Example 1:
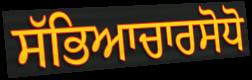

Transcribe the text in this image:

ਸੱਭਿਆਚਾਰਸੋਧੋ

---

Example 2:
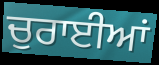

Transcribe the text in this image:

ਚੁਰਾਈਆਂ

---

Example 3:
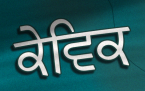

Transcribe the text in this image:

ਕੇਵਿਕ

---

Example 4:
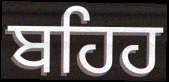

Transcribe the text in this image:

ਬਹਿਹ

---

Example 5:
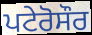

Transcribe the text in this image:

ਪਟੇਰੋਸੌਰ